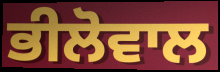
ਭੀਲੋਵਾਲ